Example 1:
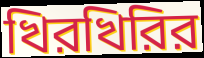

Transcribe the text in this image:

খিরখিরির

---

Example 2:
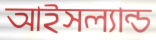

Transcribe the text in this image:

আইসল্যান্ড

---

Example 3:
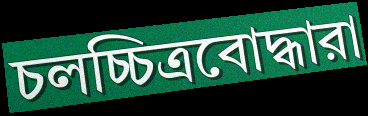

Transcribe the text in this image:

চলচ্চিত্রবোদ্ধারা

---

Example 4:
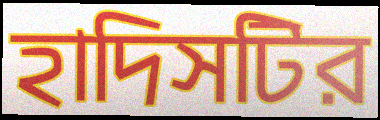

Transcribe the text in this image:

হাদিসটির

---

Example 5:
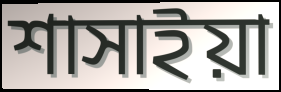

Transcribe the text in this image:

শাসাইয়া